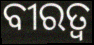
ବୀରତ୍ଵ